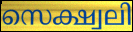
സെക്ഷ്വലി